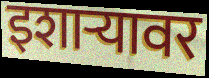
इशाऱ्यावर